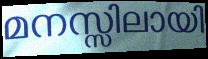
മനസ്സിലായി